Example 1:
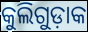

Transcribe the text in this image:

କୁଲିଗୁଡ଼ାକ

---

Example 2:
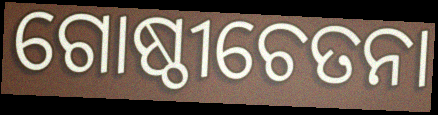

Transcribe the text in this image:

ଗୋଷ୍ଠୀଚେତନା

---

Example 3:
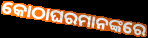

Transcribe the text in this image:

କୋଠାଘରମାନଙ୍କରେ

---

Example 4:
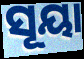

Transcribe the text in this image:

ସୂୟା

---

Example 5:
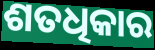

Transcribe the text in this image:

ଶତଧିକାର